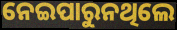
ନେଇପାରୁନଥିଲେ